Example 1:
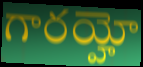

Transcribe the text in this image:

గారయ్హో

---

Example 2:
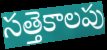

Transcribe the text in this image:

సత్తెకాలపు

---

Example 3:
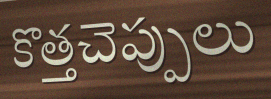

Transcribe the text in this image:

కొత్తచెప్పులు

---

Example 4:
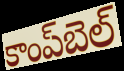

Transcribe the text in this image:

కాంప్‌బెల్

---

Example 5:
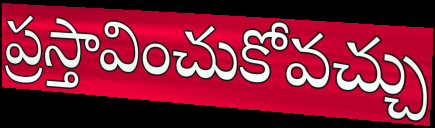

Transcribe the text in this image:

ప్రస్తావించుకోవచ్చు